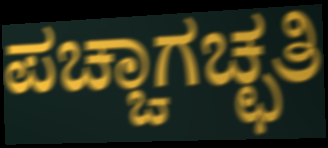
ಪಚ್ಚಾಗಚ್ಛತಿ